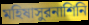
মহিষাসুরনাশিনি